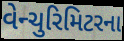
વેન્ચુરિમિટરના